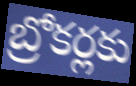
బ్రోకర్లకు